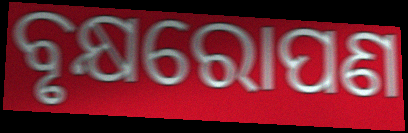
ବୃକ୍ଷରୋପଣ